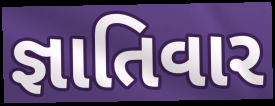
જ્ઞાતિવાર